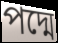
পদ্মে